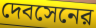
দেবসেনের